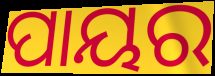
ପାୟର